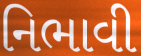
નિભાવી